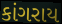
કાંગરાય